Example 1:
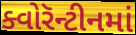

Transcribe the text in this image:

ક્વોરૅન્ટીનમાં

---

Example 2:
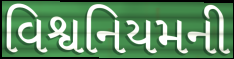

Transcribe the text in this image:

વિશ્વનિયમની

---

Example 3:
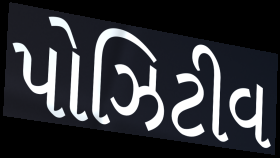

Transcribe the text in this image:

પોઝિટીવ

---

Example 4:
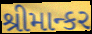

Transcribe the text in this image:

શ્રીમાન્કર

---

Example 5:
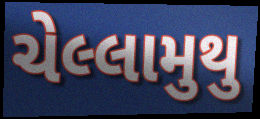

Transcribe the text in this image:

ચેલ્લામુથુ